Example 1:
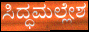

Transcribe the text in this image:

ಸಿದ್ಧಮಲ್ಲೇಶ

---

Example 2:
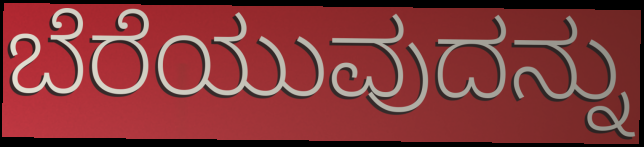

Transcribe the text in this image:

ಬೆರೆಯುವುದನ್ನು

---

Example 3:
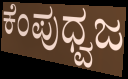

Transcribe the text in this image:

ಕೆಂಪುಧ್ವಜ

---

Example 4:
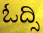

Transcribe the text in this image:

ಓದ್ಸಿ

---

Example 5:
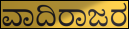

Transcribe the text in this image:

ವಾದಿರಾಜರ